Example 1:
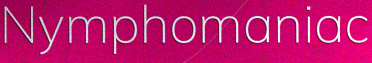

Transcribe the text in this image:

Nymphomaniac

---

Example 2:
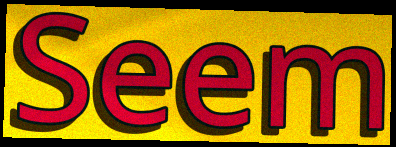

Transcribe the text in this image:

Seem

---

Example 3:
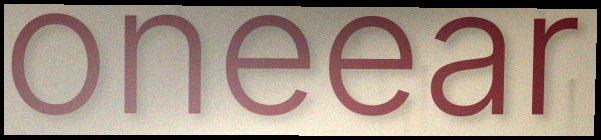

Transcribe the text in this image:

oneear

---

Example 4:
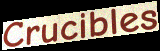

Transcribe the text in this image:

Crucibles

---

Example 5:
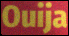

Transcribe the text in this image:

Ouija